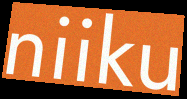
niiku